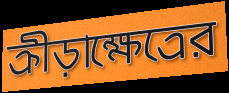
ক্রীড়াক্ষেত্রের